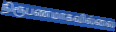
நிரூபணமாகவில்லை